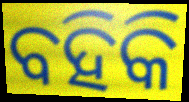
ବହିକି